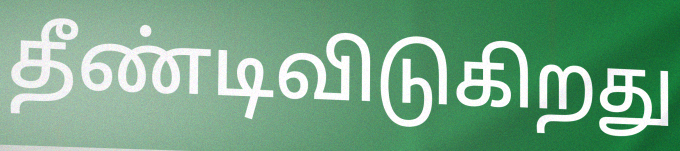
தீண்டிவிடுகிறது